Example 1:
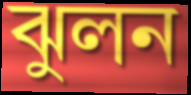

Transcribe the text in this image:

ঝুলন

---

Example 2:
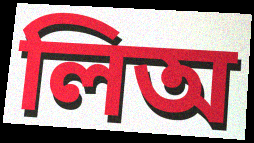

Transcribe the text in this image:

লিঅ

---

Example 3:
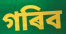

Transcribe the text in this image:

গৰিব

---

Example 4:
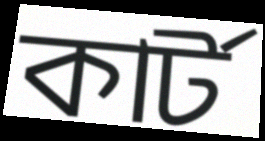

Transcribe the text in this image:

কাৰ্ট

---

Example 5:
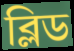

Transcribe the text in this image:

ব্লিড